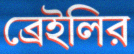
ব্রেইলির